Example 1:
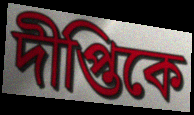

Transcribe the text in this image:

দীপ্তিকে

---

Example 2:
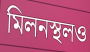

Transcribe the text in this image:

মিলনস্থলও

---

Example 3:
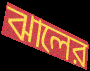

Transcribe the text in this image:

ঝালের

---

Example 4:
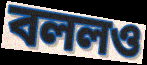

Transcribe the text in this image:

বললও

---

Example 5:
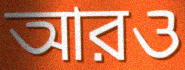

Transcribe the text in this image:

আরও